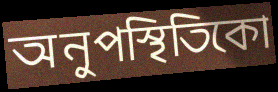
অনুপস্থিতিকো